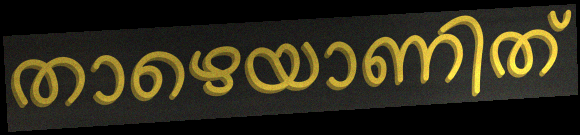
താഴെയാണിത്